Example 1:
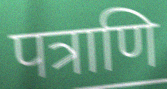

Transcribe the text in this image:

पत्राणि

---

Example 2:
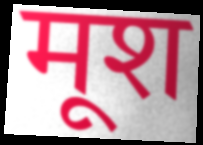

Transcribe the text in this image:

मूश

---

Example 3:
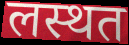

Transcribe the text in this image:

लस्थत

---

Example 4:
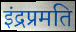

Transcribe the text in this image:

इंद्रप्रमति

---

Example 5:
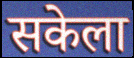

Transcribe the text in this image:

सकेला